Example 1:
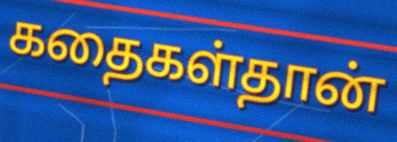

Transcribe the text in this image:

கதைகள்தான்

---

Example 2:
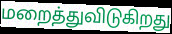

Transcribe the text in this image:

மறைத்துவிடுகிறது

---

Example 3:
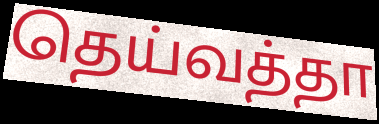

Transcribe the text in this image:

தெய்வத்தா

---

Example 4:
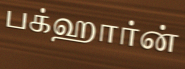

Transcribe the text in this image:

பக்ஹார்ன்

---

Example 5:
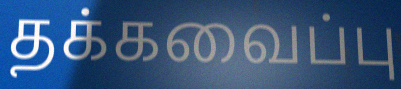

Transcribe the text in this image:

தக்கவைப்பு